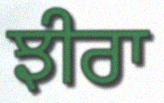
ਝੀਰਾ